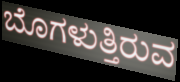
ಬೊಗಳುತ್ತಿರುವ